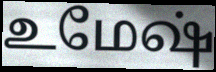
உமேஷ்